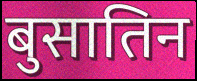
बुसातिन